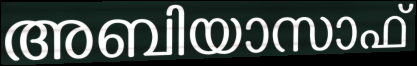
അബിയാസാഫ്